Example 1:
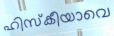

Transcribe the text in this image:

ഹിസ്കീയാവെ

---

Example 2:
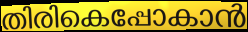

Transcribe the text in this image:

തിരികെപ്പോകാൻ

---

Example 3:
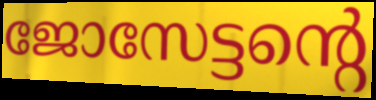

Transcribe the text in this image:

ജോസേട്ടന്റെ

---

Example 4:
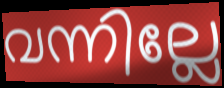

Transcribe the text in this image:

വന്നില്ലേ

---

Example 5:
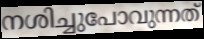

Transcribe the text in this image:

നശിച്ചുപോവുന്നത്